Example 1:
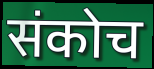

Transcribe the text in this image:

संकोच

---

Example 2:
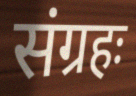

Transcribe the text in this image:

संग्रहः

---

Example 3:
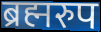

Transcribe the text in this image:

ब्रह्मरुप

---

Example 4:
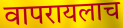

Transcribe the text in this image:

वापरायलाच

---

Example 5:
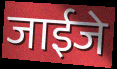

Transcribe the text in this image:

जाईजे